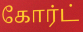
கோர்ட்